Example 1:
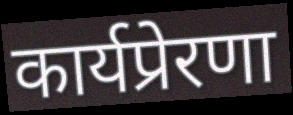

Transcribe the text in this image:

कार्यप्रेरणा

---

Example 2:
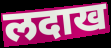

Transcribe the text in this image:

लदाख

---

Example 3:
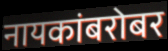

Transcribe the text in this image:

नायकांबरोबर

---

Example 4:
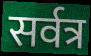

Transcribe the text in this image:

सर्वत्र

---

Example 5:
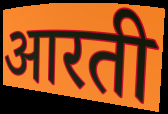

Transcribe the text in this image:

आरती